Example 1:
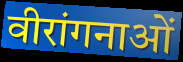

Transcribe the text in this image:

वीरांगनाओं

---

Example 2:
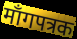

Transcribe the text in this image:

माँगपत्रक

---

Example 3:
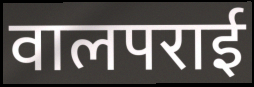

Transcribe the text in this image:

वालपराई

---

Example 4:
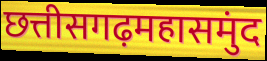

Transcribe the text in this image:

छत्तीसगढ़महासमुंद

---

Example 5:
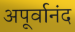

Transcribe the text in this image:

अपूर्वानंद